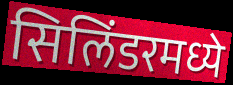
सिलिंडरमध्ये